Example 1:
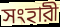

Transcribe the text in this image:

সংহারী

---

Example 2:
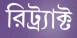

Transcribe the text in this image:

রিট্র্যাক্ট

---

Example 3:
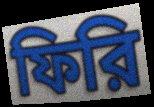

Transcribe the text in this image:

ফিরি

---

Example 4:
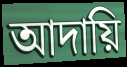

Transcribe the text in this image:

আদায়ি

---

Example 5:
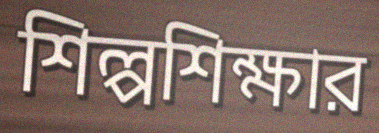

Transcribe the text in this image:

শিল্পশিক্ষার